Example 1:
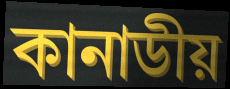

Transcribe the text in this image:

কানাডীয়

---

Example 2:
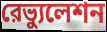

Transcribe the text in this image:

রেভ্যুলেশন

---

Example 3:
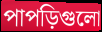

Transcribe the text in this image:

পাপড়িগুলো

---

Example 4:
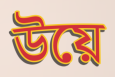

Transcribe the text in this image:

উয়ে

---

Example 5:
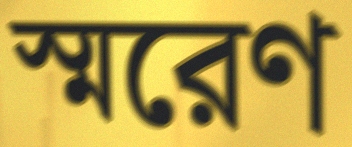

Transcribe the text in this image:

স্মরেণ